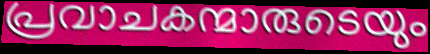
പ്രവാചകന്മാരുടെയും